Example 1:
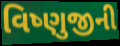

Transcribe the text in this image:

વિષ્ણુજીની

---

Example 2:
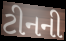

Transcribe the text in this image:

ટીનની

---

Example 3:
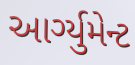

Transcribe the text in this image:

આર્ગ્યુમેન્ટ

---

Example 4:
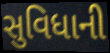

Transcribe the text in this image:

સુવિધાની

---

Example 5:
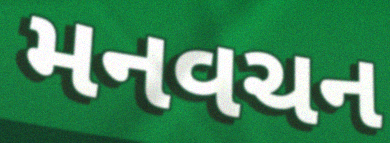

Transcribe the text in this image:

મનવચન